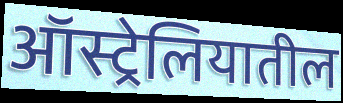
ऑस्ट्रेलियातील